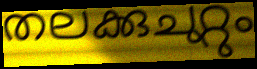
തലക്കുചുറ്റും